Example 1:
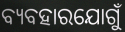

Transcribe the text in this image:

ବ୍ୟବହାରଯୋଗୁଁ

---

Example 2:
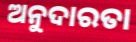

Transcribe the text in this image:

ଅନୁଦାରତା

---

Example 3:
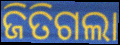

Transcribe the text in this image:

ଜିତିଗଲା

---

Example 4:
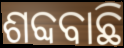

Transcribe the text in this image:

ଶବ୍ଦବାଛି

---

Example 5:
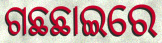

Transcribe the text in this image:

ଗଛଛାଇରେ